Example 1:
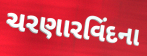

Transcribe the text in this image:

ચરણારવિંદના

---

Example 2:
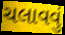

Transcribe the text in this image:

ચલાવવું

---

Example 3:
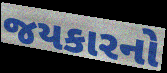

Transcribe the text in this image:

જયકારનો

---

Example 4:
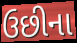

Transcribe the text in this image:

ઉછીના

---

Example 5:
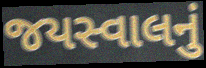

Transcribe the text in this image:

જયસ્વાલનું